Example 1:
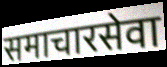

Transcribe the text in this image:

समाचारसेवा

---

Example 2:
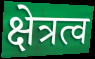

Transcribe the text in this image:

क्षेत्रत्व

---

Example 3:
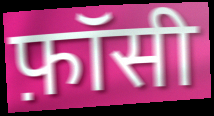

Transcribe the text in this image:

फ़ॉसी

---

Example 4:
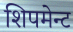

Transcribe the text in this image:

शिपमेन्ट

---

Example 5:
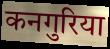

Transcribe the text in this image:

कनगुरिया